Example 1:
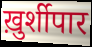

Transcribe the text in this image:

ख़ुर्शीपार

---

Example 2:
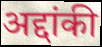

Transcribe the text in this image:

अद्दांकी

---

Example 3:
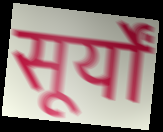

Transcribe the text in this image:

सूर्यों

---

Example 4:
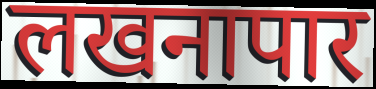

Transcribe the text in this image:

लखनापार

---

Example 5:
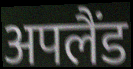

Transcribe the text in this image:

अपलैंड